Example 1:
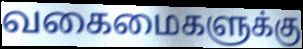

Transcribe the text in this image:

வகைமைகளுக்கு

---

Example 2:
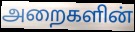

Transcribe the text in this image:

அறைகளின்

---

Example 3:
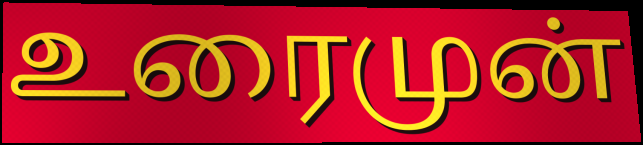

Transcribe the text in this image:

உரைமுன்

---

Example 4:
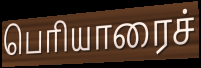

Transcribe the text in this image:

பெரியாரைச்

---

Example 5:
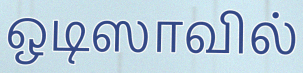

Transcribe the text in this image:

ஒடிஸாவில்